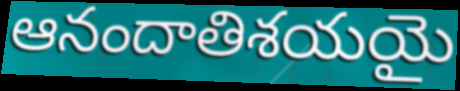
ఆనందాతిశయయై